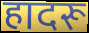
हादरू